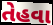
તેહવા